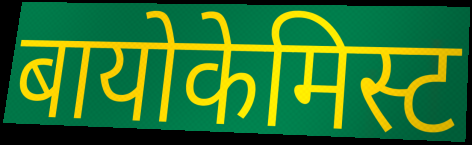
बायोकेमिस्ट